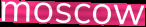
moscow